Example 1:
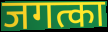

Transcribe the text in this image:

जगत्का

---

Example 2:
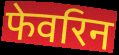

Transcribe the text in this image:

फेवरिन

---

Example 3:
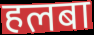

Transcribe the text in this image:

हलबा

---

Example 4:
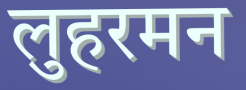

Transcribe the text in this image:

लुहरमन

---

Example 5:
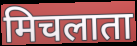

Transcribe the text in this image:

मिचलाता